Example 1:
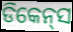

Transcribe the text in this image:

ଡିକେନ୍‌ସ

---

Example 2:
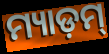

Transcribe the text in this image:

ମ୍ୟାଡ଼ମ୍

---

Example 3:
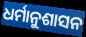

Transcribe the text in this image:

ଧର୍ମାନୁଶାସନ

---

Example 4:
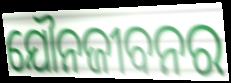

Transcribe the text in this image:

ଯୌନଜୀବନର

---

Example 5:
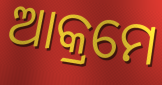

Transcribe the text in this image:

ଆକ୍ରମେ